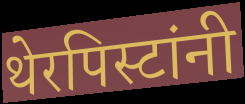
थेरपिस्टांनी